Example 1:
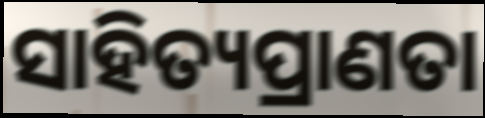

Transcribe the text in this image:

ସାହିତ୍ୟପ୍ରାଣତା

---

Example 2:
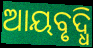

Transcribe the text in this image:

ଆୟବୃଦ୍ଧି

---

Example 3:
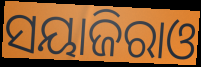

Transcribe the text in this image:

ସୟାଜିରାଓ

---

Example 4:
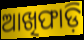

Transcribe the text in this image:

ଆଖିଫାଡ଼ି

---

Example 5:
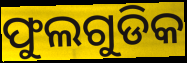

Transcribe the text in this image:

ଫୁଲଗୁଡିକ